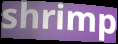
shrimp